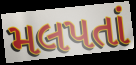
મલપતાં